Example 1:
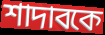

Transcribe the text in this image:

শাদাবকে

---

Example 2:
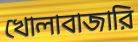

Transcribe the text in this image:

খোলাবাজারি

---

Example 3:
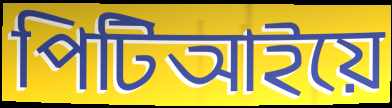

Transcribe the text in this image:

পিটিআইয়ে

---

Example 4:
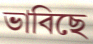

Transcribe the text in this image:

ভাবিছে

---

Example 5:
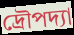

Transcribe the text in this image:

দ্রৌপদ্যা